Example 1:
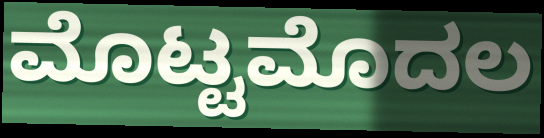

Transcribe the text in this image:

ಮೊಟ್ಟಮೊದಲ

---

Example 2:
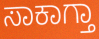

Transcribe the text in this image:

ಸಾಕಾಗ್ತಾ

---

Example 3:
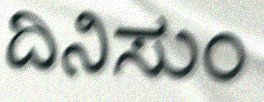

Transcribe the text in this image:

ದಿನಿಸುಂ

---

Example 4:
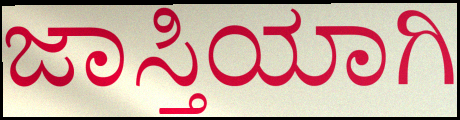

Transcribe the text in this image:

ಜಾಸ್ತಿಯಾಗಿ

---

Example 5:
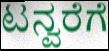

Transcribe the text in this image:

ಟನ್ವರೆಗೆ